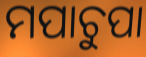
ମପାଚୁପା